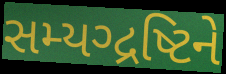
સમ્યગ્દ્રષ્ટિને